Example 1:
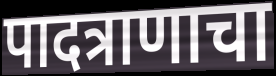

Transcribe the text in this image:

पादत्राणाचा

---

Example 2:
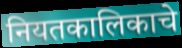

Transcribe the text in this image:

नियतकालिकाचे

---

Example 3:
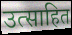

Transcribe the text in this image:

उत्साहित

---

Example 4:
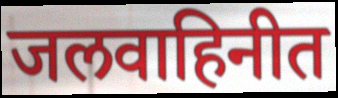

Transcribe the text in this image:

जलवाहिनीत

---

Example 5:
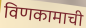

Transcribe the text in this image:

विणकामाची